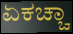
ಏಕಚ್ಚಾ